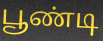
பூண்டி